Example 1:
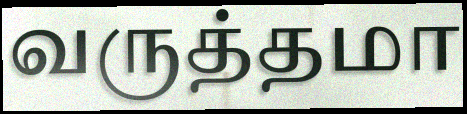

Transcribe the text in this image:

வருத்தமா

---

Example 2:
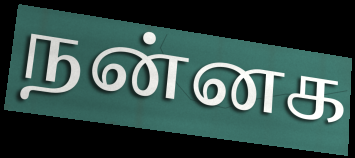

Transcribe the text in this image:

நன்னக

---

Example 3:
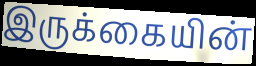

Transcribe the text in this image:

இருக்கையின்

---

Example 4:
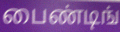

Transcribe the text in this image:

பைண்டிங்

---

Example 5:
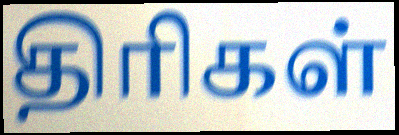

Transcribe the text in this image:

திரிகள்